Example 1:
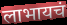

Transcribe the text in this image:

लाभायचं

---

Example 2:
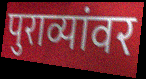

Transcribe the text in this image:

पुराव्यांवर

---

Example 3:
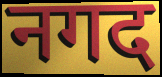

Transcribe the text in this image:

नगद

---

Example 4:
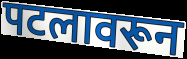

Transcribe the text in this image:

पटलावरून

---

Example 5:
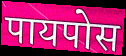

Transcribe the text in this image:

पायपोस